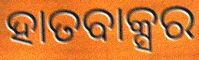
ହାତବାକ୍ସର